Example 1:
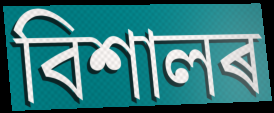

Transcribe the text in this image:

বিশালৰ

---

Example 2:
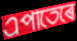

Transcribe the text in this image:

এপাতেৰে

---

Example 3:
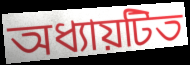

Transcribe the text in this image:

অধ্যায়টিত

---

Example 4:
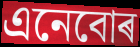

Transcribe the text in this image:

এনেবোৰ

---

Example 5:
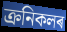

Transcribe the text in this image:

ক্ৰনিকলৰ